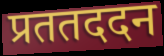
प्रततददन